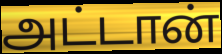
அட்டான்